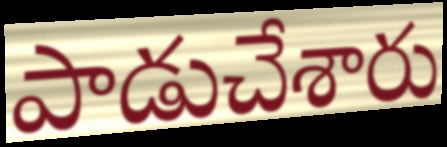
పాడుచేశారు